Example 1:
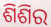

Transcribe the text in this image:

ଶିଶିର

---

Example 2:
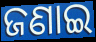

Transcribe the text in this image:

ଜଣାଇ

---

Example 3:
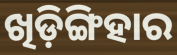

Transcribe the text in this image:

ଖିଡ଼ିଙ୍ଗିହାର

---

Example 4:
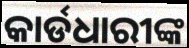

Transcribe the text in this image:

କାର୍ଡଧାରୀଙ୍କ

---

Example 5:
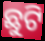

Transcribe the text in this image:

ଛୁଟି